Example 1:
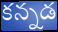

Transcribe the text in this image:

కన్నడ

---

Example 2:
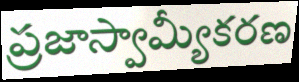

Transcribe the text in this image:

ప్రజాస్వామ్యీకరణ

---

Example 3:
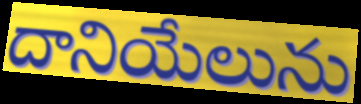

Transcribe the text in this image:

దానియేలును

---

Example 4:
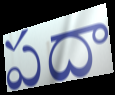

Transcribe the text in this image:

పదా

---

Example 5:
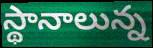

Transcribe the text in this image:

స్థానాలున్న